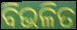
ବିଭଳିତ